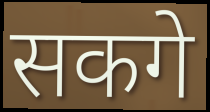
सकगे